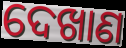
ଦେଖାଣ